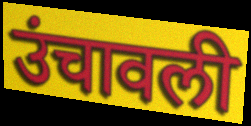
उंचावली